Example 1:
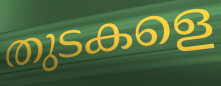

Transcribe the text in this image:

തുടകളെ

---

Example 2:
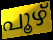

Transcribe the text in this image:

പൂഴ്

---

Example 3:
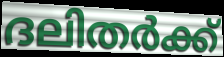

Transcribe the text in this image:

ദലിതർക്ക്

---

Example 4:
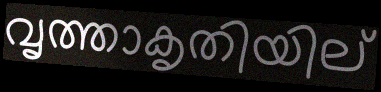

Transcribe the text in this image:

വൃത്താകൃതിയില്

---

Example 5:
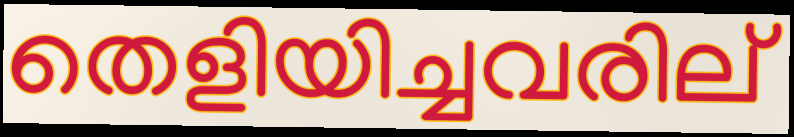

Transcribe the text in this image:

തെളിയിച്ചവരില്